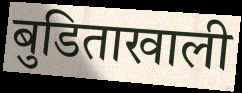
बुडिताखाली